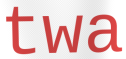
twa